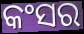
କଂସର